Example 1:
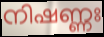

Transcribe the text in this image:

നിഷണ്ണഃ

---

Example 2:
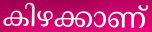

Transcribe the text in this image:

കിഴക്കാണ്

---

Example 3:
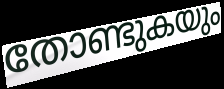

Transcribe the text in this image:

തോണ്ടുകയും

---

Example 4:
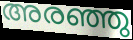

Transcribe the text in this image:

അരഞ്ഞു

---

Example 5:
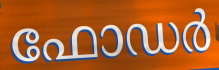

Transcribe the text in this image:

ഫോഡർ